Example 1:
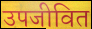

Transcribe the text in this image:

उपजीवित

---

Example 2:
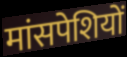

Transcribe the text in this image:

मांसपेशियों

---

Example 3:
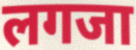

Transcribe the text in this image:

लगजा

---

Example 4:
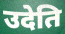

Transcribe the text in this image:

उदेति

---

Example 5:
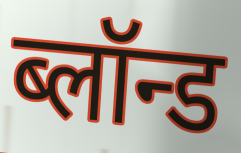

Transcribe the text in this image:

ब्लॉन्ड